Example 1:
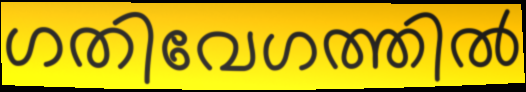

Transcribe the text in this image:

ഗതിവേഗത്തിൽ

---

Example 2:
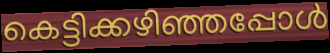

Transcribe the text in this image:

കെട്ടിക്കഴിഞ്ഞപ്പോൾ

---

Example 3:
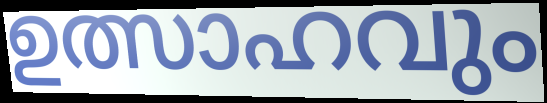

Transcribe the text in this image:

ഉത്സാഹവും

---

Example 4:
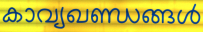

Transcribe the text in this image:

കാവ്യഖണ്ഡങ്ങൾ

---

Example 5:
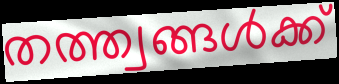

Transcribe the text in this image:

തത്ത്വങ്ങൾക്ക്